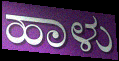
ಹಾಳು